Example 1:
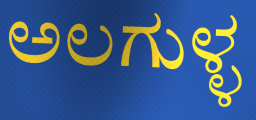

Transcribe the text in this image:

ಅಲಗುಳ್ಳ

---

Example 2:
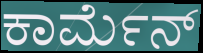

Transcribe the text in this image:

ಕಾರ್ಮೆನ್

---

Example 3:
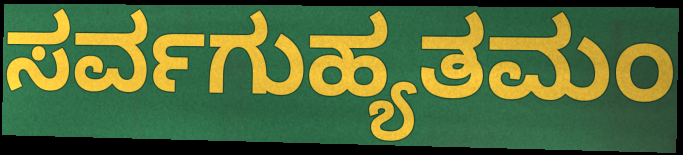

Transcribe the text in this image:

ಸರ್ವಗುಹ್ಯತಮಂ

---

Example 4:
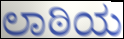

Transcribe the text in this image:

ಲಾಠಿಯ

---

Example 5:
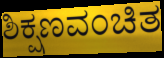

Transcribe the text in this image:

ಶಿಕ್ಷಣವಂಚಿತ